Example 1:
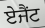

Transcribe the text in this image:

ਏਜੈਂਟ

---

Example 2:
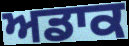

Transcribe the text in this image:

ਅਡਾਕ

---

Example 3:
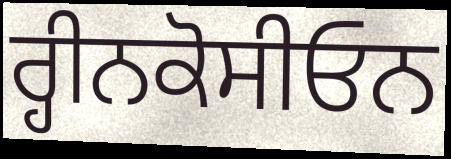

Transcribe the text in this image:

ਰ੍ਹੀਨਕੋਸੀਓਨ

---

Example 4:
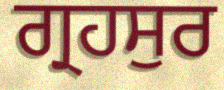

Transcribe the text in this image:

ਗ੍ਰਹਸੁਰ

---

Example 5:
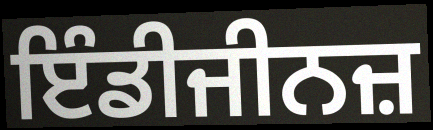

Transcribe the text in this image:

ਇੰਡੀਜੀਨਜ਼